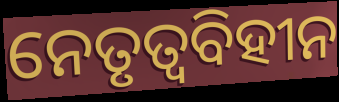
ନେତୃତ୍ୱବିହୀନ